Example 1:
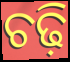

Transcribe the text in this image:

ଚଢ଼ି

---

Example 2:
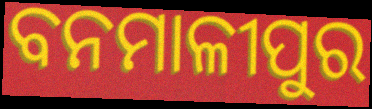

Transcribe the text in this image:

ବନମାଳୀପୁର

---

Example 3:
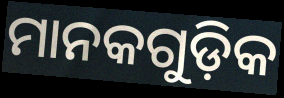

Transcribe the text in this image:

ମାନକଗୁଡ଼ିକ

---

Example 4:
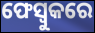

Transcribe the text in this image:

ଫେସ୍ବୁକରେ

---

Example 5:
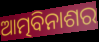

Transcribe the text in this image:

ଆତ୍ମବିନାଶର